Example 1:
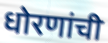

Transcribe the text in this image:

धोरणांची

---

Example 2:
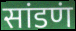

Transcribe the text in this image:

सांडणं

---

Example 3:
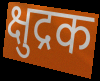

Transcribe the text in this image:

क्षुद्रक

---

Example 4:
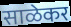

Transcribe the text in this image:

साळेकर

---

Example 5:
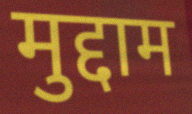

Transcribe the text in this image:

मुद्दाम